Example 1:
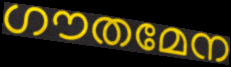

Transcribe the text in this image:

ഗൗതമേന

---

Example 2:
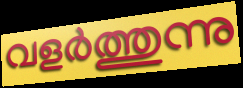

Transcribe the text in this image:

വളർത്തുന്നു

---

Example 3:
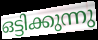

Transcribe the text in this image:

ഒട്ടിക്കുന്നു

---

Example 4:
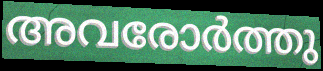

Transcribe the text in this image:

അവരോർത്തു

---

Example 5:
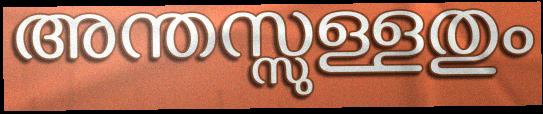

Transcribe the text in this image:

അന്തസ്സുള്ളതും